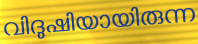
വിദുഷിയായിരുന്ന